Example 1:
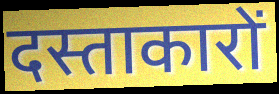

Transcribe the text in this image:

दस्ताकारों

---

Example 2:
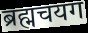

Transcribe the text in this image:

ब्रह्मचयग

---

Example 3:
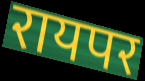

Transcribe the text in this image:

रायपर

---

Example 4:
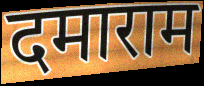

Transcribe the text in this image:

दमाराम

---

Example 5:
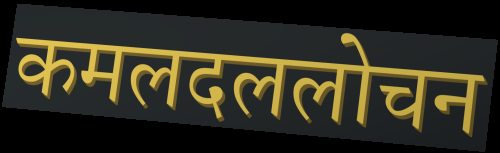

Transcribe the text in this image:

कमलदललोचन